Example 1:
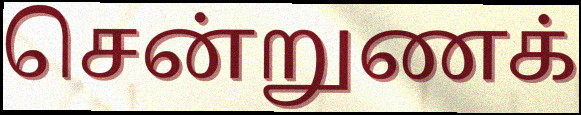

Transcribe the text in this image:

சென்றுணக்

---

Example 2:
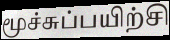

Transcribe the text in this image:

மூச்சுப்பயிற்சி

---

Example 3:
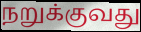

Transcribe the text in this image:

நறுக்குவது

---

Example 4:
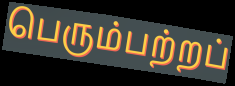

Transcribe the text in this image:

பெரும்பற்றப்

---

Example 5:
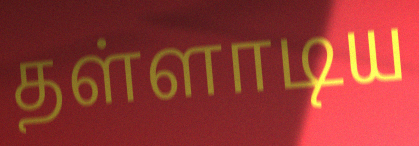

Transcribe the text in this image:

தள்ளாடிய